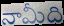
నామీది